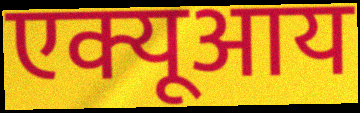
एक्यूआय